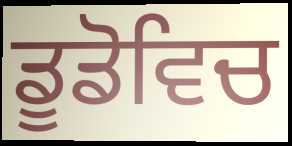
ਡੂਡੋਵਿਚ